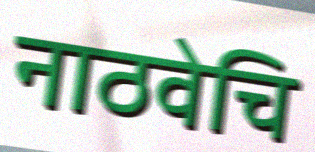
नाठवेचि